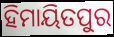
ହିମାୟିତପୁର